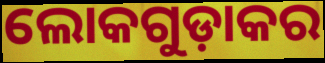
ଲୋକଗୁଡ଼ାକର